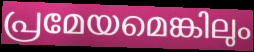
പ്രമേയമെങ്കിലും